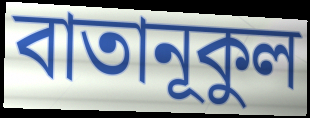
বাতানূকুল